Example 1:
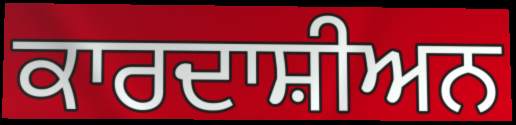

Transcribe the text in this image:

ਕਾਰਦਾਸ਼ੀਅਨ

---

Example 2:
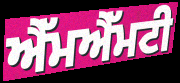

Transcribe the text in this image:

ਐੱਮਐੱਮਟੀ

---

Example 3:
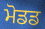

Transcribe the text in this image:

ਮੋਡਡ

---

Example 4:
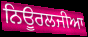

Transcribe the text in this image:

ਨਿਊਰਲਜੀਆ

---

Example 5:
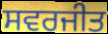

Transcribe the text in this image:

ਸਵਰਜੀਤ